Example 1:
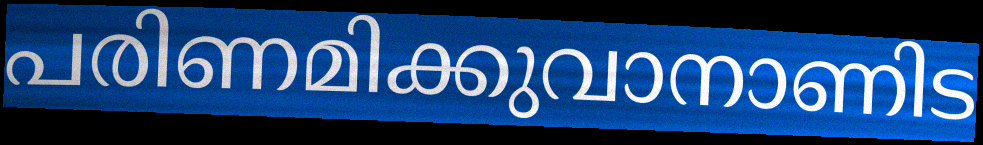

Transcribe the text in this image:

പരിണമിക്കുവാനാണിട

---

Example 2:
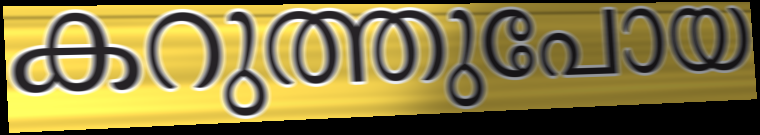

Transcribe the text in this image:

കറുത്തുപോയ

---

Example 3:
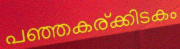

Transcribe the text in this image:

പഞ്ഞകര്ക്കിടകം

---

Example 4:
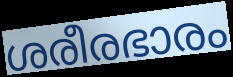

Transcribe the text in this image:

ശരീരഭാരം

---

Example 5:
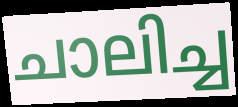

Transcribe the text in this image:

ചാലിച്ച